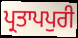
ਪ੍ਰਤਾਪਪੁਰੀ